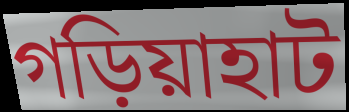
গড়িয়াহাট